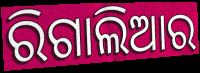
ରିଗାଲିଆର